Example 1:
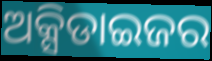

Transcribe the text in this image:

ଅକ୍ସିଡାଇଜର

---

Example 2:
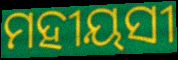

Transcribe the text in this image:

ମହୀୟସୀ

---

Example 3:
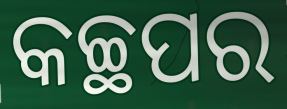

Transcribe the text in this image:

କଚ୍ଛପର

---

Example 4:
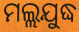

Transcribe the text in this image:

ମଲ୍ଲଯୁଦ୍ଧ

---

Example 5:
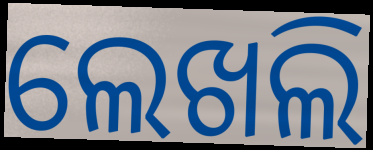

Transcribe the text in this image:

ଲେଖଲି